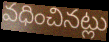
వధించినట్లు